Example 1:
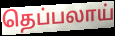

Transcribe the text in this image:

தெப்பலாய்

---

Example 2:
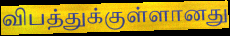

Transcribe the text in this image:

விபத்துக்குள்ளானது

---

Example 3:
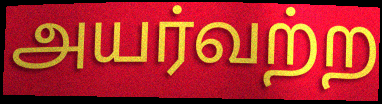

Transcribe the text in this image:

அயர்வற்ற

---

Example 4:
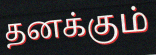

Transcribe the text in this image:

தனக்கும்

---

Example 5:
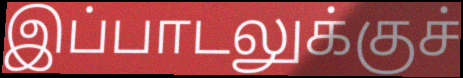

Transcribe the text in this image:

இப்பாடலுக்குச்